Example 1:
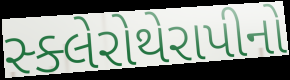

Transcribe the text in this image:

સ્ક્લેરોથેરાપીનો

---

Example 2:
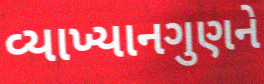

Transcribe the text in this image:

વ્યાખ્યાનગુણને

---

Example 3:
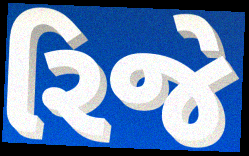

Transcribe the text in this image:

રિજે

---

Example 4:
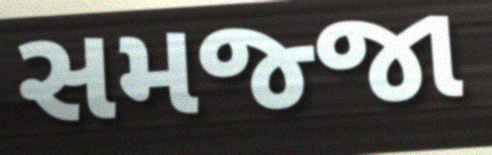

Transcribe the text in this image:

સમજ્જા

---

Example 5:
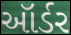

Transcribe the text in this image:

ઑર્ડર